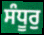
ਸੰਧੂਰੁ